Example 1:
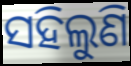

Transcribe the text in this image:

ସହିଲୁଣି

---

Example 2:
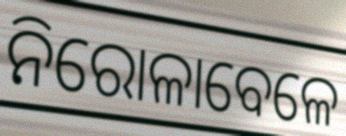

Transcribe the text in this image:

ନିରୋଳାବେଳେ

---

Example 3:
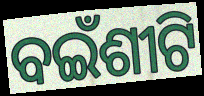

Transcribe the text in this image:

ବଇଁଶୀଟି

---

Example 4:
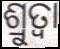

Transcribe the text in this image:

ଶ୍ରୁତ୍ଵା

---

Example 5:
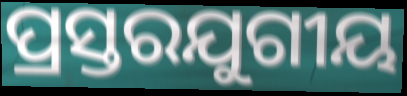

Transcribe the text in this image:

ପ୍ରସ୍ତରଯୁଗୀୟ